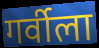
गर्वीला